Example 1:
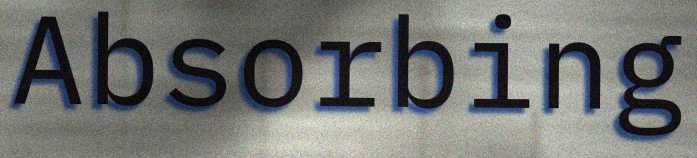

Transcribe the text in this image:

Absorbing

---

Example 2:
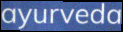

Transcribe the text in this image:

ayurveda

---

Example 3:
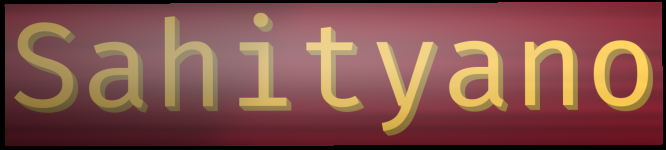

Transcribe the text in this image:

Sahityano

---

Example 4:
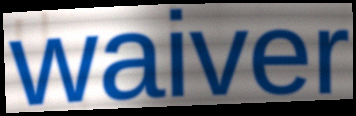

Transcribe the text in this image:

waiver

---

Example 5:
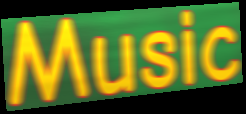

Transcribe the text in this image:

Music